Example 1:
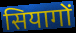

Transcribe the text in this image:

सियागों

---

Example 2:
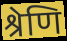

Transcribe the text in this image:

श्रेणि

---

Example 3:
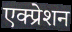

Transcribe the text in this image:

एक्प्रेशन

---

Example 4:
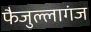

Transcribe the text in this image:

फैजुल्लागंज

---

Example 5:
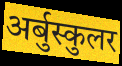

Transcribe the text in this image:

अर्बुस्कुलर